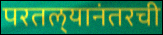
परतल्यानंतरची